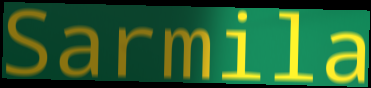
Sarmila